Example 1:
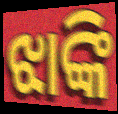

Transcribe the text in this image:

ଝାଙ୍କି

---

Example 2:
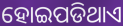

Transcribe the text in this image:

ହୋଇପଡିଥାଏ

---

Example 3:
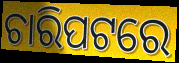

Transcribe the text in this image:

ଚାରିପଟରେ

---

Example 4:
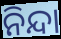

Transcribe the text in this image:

ନିନ୍ଦା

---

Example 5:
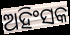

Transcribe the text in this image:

ଅହିଂସକ